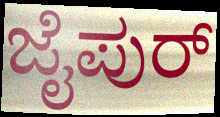
ಜೈಪುರ್